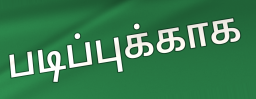
படிப்புக்காக